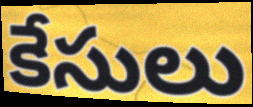
కేసులు